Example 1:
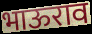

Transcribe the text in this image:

भाऊराव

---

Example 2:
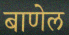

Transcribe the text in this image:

बाणेल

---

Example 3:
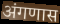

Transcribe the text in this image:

अंगणास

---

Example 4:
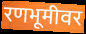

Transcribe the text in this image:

रणभूमीवर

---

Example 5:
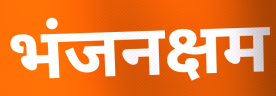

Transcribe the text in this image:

भंजनक्षम